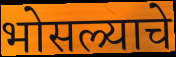
भोसल्याचे